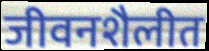
जीवनशैलीत